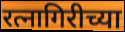
रत्नागिरीच्या